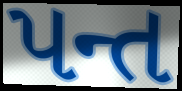
પન્ત